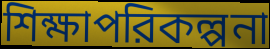
শিক্ষাপরিকল্পনা